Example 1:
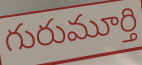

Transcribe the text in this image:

గురుమూర్తి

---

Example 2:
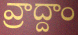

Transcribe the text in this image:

వ్రాద్దాం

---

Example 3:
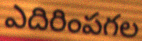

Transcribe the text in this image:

ఎదిరింపగల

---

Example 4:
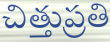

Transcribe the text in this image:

చిత్తుప్రతి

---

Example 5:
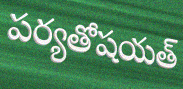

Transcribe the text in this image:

పర్యతోషయత్